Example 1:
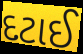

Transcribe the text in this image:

દટાઈ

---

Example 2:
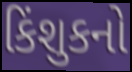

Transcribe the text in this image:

કિંશુકનો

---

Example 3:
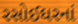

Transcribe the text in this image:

રસોઈઘરનાં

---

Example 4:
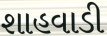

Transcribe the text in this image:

શાહવાડી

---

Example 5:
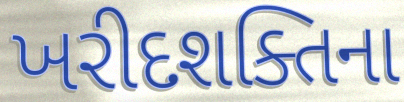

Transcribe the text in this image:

ખરીદશક્તિના